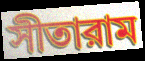
সীতারাম